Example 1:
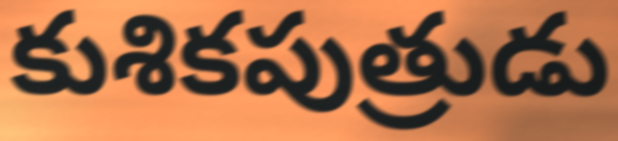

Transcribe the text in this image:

కుశికపుత్రుడు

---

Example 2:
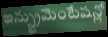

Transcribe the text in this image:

ఇన్స్ట్రుమెంటేషన్లో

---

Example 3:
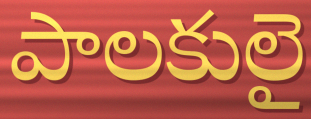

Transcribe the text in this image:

పాలకులై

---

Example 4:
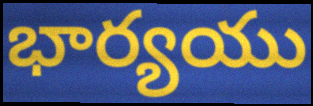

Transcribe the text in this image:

భార్యయు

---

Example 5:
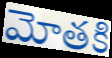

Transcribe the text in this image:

మోతకి